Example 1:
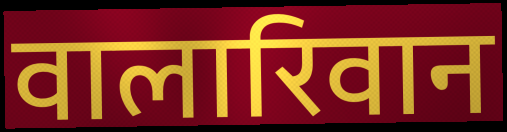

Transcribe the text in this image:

वालारिवान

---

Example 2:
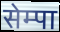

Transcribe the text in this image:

सेम्पा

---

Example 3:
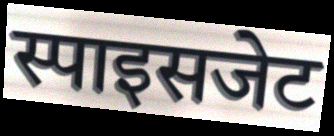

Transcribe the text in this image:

स्‍पाइसजेट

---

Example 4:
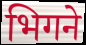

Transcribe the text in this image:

भिगने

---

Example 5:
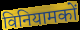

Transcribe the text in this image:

विनियामकों